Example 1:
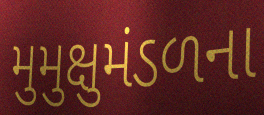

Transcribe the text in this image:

મુમુક્ષુમંડળના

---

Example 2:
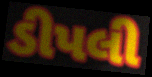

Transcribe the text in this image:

ડીપલી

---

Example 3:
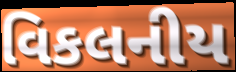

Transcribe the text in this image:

વિકલનીય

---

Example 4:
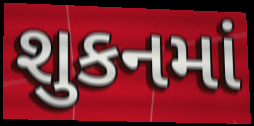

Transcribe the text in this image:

શુકનમાં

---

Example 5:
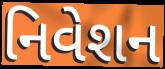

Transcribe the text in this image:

નિવેશન